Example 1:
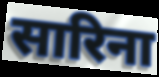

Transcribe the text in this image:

सारिना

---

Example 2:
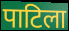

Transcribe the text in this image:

पाटिला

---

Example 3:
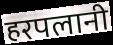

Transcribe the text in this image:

हरपलानी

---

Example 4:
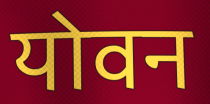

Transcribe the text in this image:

योवन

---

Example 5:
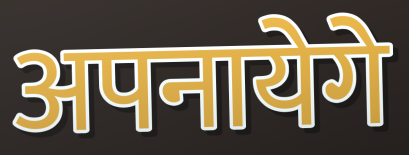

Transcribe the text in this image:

अपनायेगे